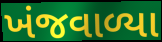
ખંજવાળ્યા